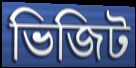
ভিজিট